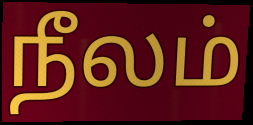
நீலம்